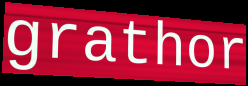
grathor